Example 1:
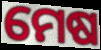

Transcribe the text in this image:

ମେଷ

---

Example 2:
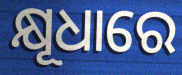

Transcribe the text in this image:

କ୍ଷୂଧାରେ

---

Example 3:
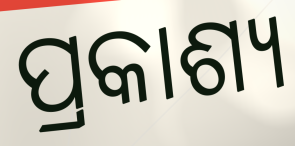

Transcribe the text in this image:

ପ୍ରକାଶ୍ୟ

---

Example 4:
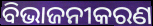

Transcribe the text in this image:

ବିଭାଜନୀକରଣ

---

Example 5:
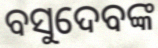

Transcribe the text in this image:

ବସୁଦେବଙ୍କ